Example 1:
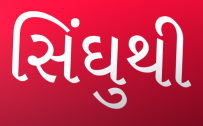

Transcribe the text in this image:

સિંઘુથી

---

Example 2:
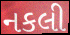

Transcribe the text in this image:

નકલી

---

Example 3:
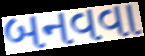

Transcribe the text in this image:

બનવવા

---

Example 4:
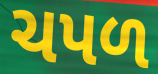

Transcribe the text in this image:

ચપળ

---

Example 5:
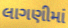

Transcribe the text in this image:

લાગણીમાં